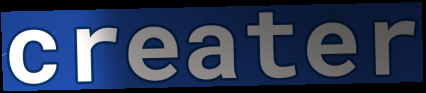
creater